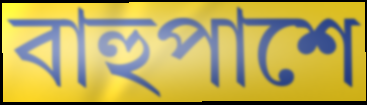
বাহুপাশে